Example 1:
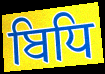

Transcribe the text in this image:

ਬਿਧਿ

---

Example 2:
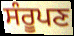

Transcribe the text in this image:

ਸੰਰੂਪਣ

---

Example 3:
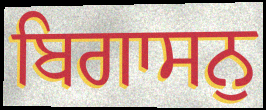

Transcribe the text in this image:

ਬਿਗਾਸਨੁ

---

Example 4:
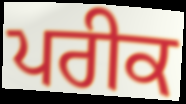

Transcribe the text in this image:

ਪਰੀਕ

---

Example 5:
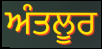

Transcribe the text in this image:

ਅੰਤਲੂਰ